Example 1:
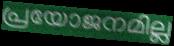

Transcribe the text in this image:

പ്രയോജനമില്ല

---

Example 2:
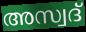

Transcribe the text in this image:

അസ്വദ്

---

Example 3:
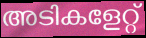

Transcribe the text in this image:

അടികളേറ്റ്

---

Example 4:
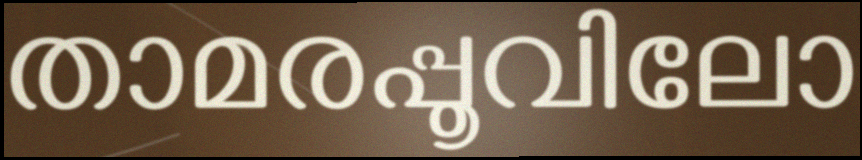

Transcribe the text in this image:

താമരപ്പൂവിലോ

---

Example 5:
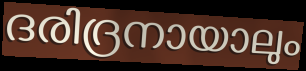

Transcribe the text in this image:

ദരിദ്രനായാലും